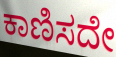
ಕಾಣಿಸದೇ